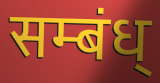
सम्बंध्